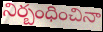
నిర్బంధించినా